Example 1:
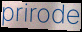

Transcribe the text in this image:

prirode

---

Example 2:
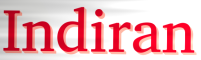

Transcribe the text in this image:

Indiran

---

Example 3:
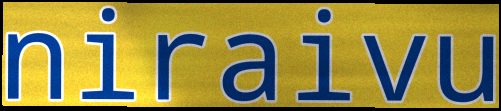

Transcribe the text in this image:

niraivu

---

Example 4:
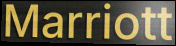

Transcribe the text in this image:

Marriott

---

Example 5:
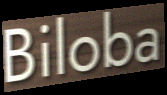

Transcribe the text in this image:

Biloba